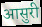
आसुरी